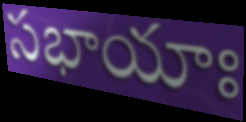
సభాయాః